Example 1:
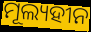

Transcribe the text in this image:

ମୂଲ୍ୟହୀନ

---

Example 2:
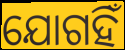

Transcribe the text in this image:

ଯୋଗହିଁ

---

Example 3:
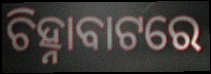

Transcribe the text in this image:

ଚିହ୍ନାବାଟରେ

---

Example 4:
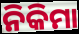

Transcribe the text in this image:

ନିକିମା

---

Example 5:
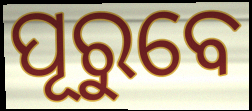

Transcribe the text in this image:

ପୂରୁବେ